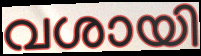
വശായി